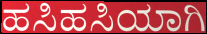
ಹಸಿಹಸಿಯಾಗಿ